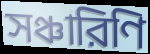
সঞ্চারিণি